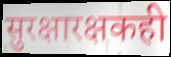
सुरक्षारक्षकही